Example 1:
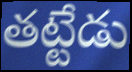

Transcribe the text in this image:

తట్టేడు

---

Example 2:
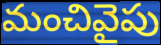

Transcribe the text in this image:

మంచివైపు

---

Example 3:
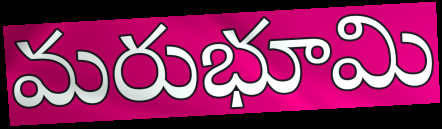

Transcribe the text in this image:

మరుభూమి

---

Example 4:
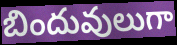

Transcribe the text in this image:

బిందువులుగా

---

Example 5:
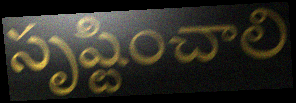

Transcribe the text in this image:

సృష్టించాలి